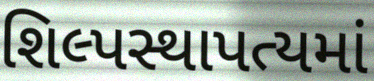
શિલ્પસ્થાપત્યમાં